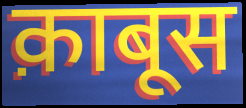
क़ाबूस